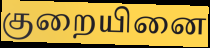
குறையினை